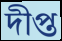
দীপ্ত